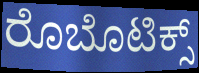
ರೊಬೊಟಿಕ್ಸ್